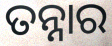
ତନ୍ନାର